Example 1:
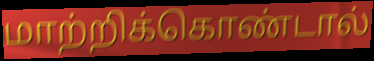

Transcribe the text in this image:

மாற்றிக்கொண்டால்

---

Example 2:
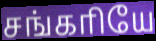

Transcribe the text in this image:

சங்கரியே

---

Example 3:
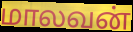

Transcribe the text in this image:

மாலவன்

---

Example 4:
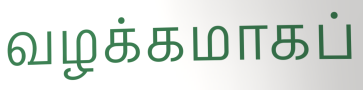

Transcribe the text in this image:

வழக்கமாகப்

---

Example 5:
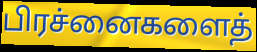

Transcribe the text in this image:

பிரச்னைகளைத்